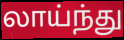
லாய்ந்து